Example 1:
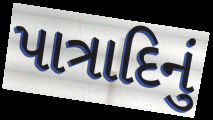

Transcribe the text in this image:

પાત્રાદિનું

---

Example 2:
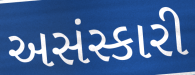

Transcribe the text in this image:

અસંસ્કારી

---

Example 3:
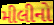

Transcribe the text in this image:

મીલીનો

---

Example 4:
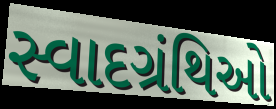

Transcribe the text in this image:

સ્વાદગ્રંથિઓ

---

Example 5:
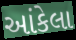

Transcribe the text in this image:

આંકેલા